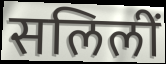
सलिलीं